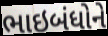
ભાઇબંધોને